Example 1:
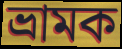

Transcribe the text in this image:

ভ্রামক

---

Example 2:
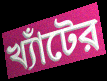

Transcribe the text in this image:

খ্যাঁটের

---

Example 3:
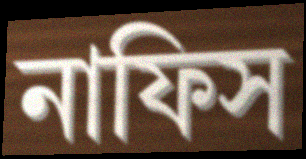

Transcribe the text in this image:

নাফিস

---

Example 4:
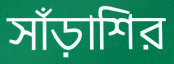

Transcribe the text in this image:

সাঁড়াশির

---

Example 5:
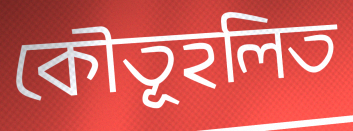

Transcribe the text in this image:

কৌতূহলিত